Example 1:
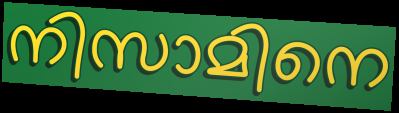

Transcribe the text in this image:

നിസാമിനെ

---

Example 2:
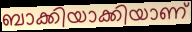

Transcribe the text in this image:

ബാക്കിയാക്കിയാണ്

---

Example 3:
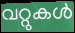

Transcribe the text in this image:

വറ്റുകൾ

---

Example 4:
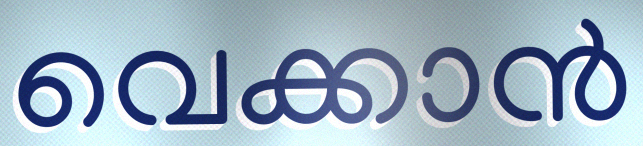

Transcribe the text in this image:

വെക്കാൻ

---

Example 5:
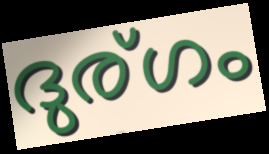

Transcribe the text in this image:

ദുര്ഗം